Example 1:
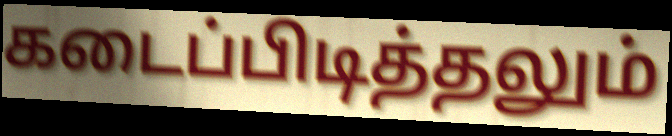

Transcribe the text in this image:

கடைப்பிடித்தலும்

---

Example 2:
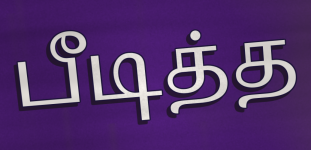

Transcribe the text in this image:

பீடித்த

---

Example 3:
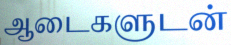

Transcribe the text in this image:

ஆடைகளுடன்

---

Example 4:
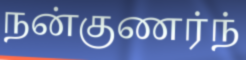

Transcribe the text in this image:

நன்குணர்ந்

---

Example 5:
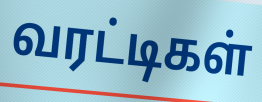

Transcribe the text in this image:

வரட்டிகள்